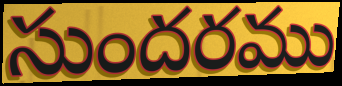
సుందరము